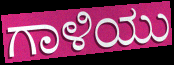
ಗಾಳಿಯು